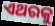
ଏଥରକୁ